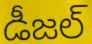
డీజల్